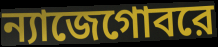
ন্যাজেগোবরে